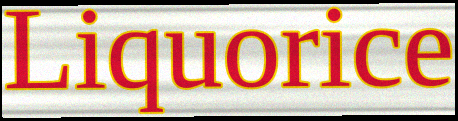
Liquorice